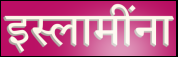
इस्लामींना